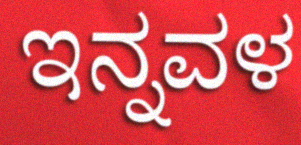
ಇನ್ನವಳ